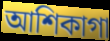
আশিকাগা